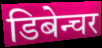
डिबेन्चर